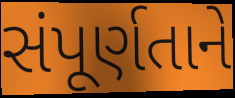
સંપૂર્ણતાને